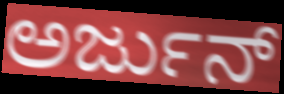
ಅರ್ಜುನ್